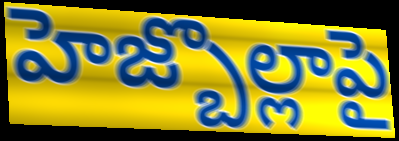
హెజ్బొల్లాపై